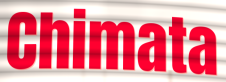
Chimata